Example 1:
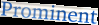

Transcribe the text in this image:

Prominent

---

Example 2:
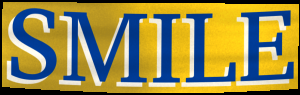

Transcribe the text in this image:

SMILE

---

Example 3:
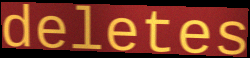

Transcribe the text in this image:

deletes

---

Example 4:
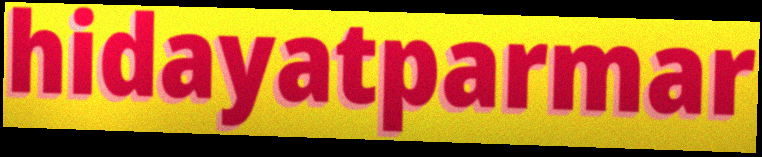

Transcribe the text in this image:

hidayatparmar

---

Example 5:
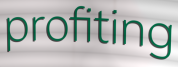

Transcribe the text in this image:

profiting